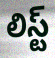
లిస్ట్